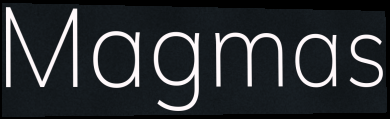
Magmas